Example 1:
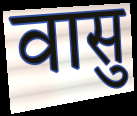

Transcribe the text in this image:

वासु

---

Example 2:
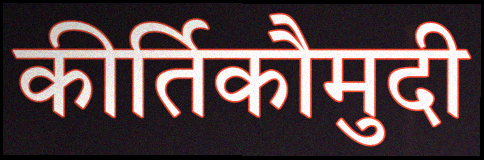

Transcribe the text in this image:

कीर्तिकौमुदी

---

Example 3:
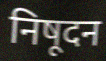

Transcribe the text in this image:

निषूदन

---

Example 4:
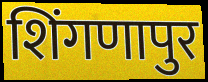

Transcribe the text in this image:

शिंगणापुर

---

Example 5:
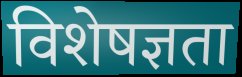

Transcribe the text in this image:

विशेषज्ञता